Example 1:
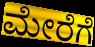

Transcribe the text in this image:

ಮೇರೆಗೆ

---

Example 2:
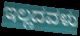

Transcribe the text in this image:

ಇಲ್ಲದವಳು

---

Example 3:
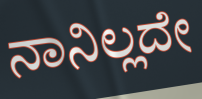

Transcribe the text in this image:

ನಾನಿಲ್ಲದೇ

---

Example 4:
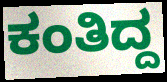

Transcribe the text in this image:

ಕಂತಿದ್ದ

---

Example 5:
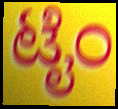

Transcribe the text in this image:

ಟೈಂ